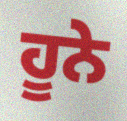
ਹੂਨੇ